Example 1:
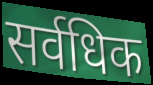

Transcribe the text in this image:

सर्वधिक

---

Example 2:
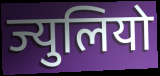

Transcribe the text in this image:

ज्युलियो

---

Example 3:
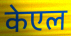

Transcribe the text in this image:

केएल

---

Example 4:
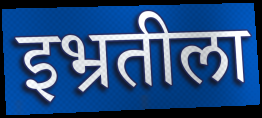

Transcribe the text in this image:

इभ्रतीला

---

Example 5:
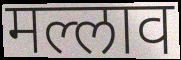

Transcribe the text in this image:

मल्लाव